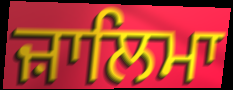
ਜ਼ਾਲਿਮਾ